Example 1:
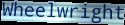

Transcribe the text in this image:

Wheelwright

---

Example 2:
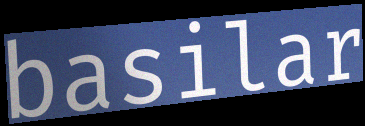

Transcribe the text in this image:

basilar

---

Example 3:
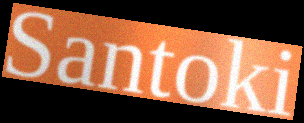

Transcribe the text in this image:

Santoki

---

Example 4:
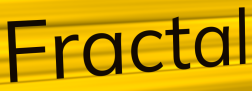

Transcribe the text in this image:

Fractal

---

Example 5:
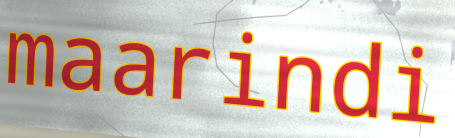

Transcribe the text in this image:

maarindi